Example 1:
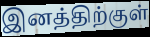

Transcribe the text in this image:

இனத்திற்குள்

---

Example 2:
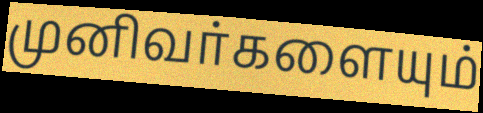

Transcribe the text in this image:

முனிவர்களையும்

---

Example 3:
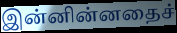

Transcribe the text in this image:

இன்னின்னதைச்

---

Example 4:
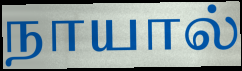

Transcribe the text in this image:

நாயால்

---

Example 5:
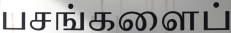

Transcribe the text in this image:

பசங்களைப்